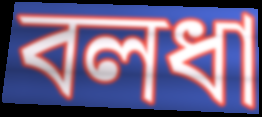
বলধা